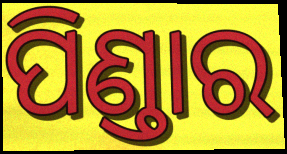
ପିଣ୍ଡାର